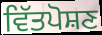
ਵਿੱਤਪੋਸ਼ਣ